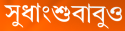
সুধাংশুবাবুও